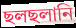
ছলছলানি